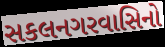
સકલનગરવાસિનો